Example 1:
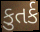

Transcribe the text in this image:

કુતર્ક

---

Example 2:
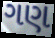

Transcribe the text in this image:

ગણ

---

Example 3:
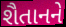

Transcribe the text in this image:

શૈતાનને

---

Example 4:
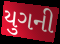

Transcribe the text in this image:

યુગની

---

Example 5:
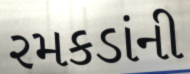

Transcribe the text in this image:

રમકડાંની